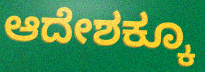
ಆದೇಶಕ್ಕೂ